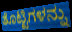
ತೊಟ್ಟಿಗಳನ್ನು